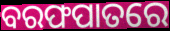
ବରଫପାତରେ